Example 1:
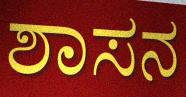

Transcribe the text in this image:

ಶಾಸನ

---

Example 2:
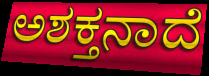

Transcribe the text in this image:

ಅಶಕ್ತನಾದೆ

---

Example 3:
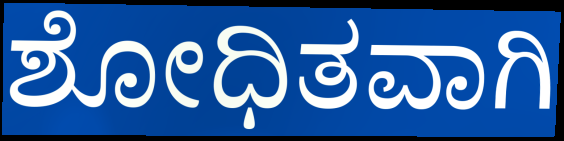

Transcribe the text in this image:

ಶೋಧಿತವಾಗಿ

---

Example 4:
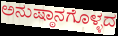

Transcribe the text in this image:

ಅನುಷ್ಠಾನಗೊಳ್ಳದ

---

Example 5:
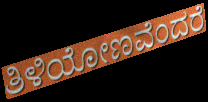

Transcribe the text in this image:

ತಿಳಿಯೋಣವೆಂದರೆ